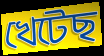
খেটেছ